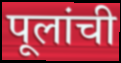
पूलांची